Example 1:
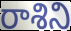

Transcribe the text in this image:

రాశిని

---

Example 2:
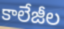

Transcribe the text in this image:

కాలేజీల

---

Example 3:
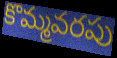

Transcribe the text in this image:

కొమ్మవరపు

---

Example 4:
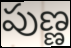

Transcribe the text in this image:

పుణ్ణ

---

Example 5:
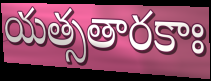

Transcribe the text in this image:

యత్సతారకాః